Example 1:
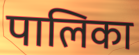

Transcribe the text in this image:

पालिका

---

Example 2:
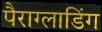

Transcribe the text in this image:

पैराग्लाडिंग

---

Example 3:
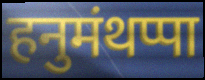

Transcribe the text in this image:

हनुमंथप्पा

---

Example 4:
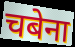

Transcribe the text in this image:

चबेना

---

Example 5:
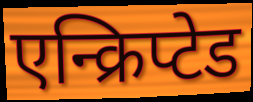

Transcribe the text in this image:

एन्क्रिप्टेड